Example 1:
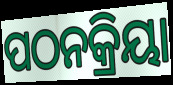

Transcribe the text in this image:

ପଠନକ୍ରିୟା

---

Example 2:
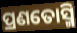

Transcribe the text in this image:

ପ୍ରଣତୋସ୍ମି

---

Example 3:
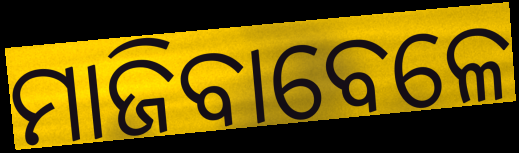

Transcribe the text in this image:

ମାଜିବାବେଳେ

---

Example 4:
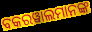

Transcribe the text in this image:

ବକରୱାଲମାନଙ୍କ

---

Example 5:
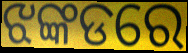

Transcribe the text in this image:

ଝଙ୍କଡରେ